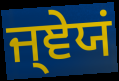
ਜ੍ਞੇਯਂ